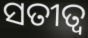
ସତୀତ୍ଵ